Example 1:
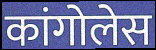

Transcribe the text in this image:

कांगोलेस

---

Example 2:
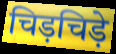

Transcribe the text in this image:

चिड़चिड़े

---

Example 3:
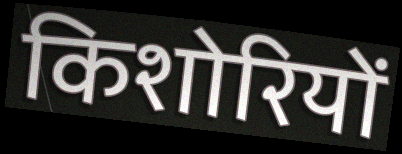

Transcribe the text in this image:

किशोरियों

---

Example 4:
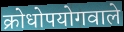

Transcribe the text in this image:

क्रोधोपयोगवाले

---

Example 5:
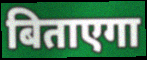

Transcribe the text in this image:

बिताएगा